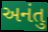
અનંતુ